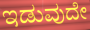
ಇಡುವುದೇ